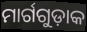
ମାର୍ଗଗୁଡ଼ାକ